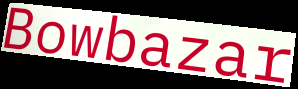
Bowbazar